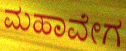
ಮಹಾವೇಗ